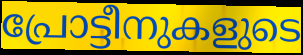
പ്രോട്ടീനുകളുടെ